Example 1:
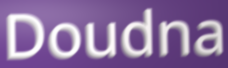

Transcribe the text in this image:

Doudna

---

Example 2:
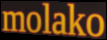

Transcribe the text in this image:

molako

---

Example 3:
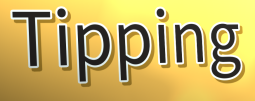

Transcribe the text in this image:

Tipping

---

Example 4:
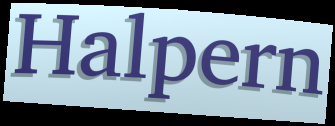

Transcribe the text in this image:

Halpern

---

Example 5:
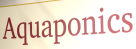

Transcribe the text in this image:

Aquaponics